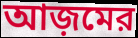
আজ়মের